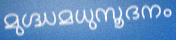
മുഗ്ദ്ധമധുസൂദനം